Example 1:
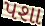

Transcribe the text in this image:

પશા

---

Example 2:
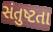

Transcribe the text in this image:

સંતુષ્ટતા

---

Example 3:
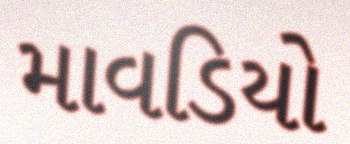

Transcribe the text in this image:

માવડિયો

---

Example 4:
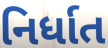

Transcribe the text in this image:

નિર્ધાત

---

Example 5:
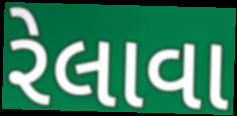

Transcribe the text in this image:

રેલાવા